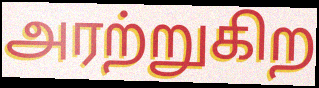
அரற்றுகிற